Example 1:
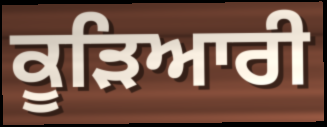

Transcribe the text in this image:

ਕੂੜਿਆਰੀ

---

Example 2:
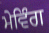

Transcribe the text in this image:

ਮੇਵਿੰਗ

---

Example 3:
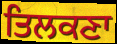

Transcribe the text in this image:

ਤਿਲਕਣਾ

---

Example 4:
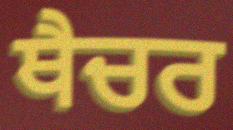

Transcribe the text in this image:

ਥੈਚਰ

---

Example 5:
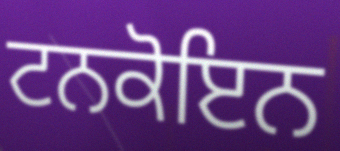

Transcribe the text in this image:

ਟਨਕੋਇਨ